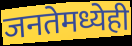
जनतेमध्येही